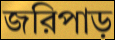
জরিপাড়